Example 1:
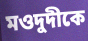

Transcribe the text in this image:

মওদুদীকে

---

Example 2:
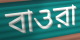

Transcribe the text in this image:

বাওরা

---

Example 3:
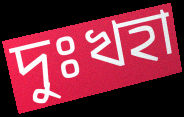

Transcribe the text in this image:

দুঃখহা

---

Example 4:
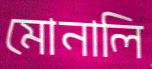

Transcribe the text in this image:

মোনালি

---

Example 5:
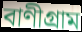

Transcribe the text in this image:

বাণীগ্রাম